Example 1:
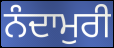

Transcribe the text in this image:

ਨੰਦਾਮੁਰੀ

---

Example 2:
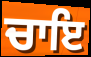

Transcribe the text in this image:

ਚਾਇ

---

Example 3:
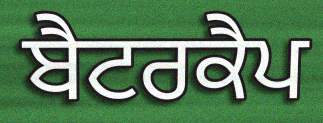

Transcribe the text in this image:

ਬੈਟਰਕੈਪ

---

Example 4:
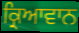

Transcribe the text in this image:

ਕ੍ਰਿਆਵਾਨ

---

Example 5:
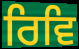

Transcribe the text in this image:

ਰਿਵਿ